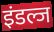
इंडल्ज